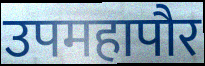
उपमहापौर